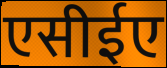
एसीईए